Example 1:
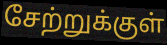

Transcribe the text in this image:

சேற்றுக்குள்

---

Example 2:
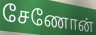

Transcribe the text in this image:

சேணோன்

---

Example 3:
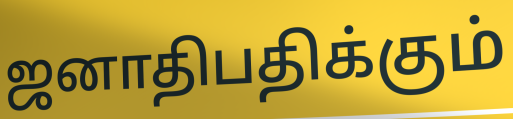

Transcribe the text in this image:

ஜனாதிபதிக்கும்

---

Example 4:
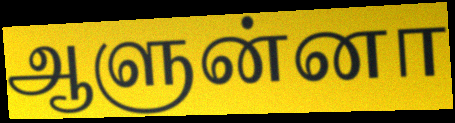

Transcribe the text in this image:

ஆளுன்னா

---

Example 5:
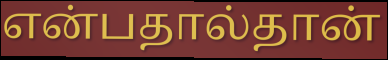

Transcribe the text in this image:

என்பதால்தான்